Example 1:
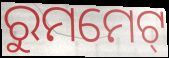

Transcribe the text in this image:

ରୁମମେଟ୍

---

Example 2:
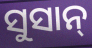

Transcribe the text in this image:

ସୁସାନ୍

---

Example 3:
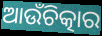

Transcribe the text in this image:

ଆଉଁଚିତ୍କାର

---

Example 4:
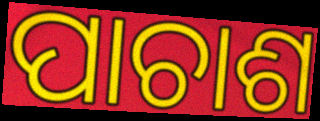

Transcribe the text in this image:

ପାଚାଶ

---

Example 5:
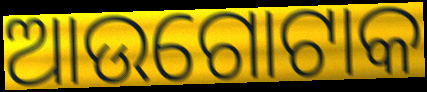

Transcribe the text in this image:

ଆଉଗୋଟାକ